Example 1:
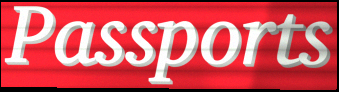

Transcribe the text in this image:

Passports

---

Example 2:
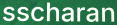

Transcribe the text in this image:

sscharan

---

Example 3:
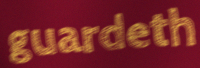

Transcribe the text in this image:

guardeth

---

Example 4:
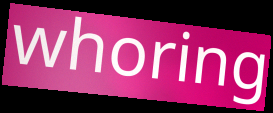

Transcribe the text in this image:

whoring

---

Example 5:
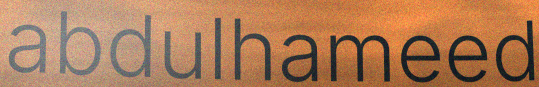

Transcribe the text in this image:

abdulhameed